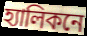
হ্যালিকনে